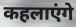
कहलाएंगे